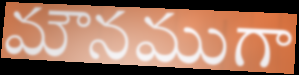
మౌనముగా